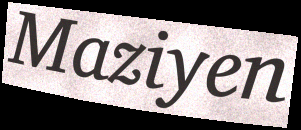
Maziyen